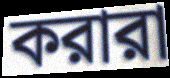
করারা